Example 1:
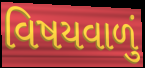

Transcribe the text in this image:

વિષયવાળું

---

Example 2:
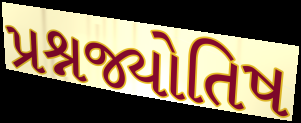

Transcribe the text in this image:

પ્રશ્નજ્યોતિષ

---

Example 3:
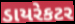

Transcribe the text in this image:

ડાયરેકટર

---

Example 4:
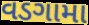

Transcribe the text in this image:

વડગામા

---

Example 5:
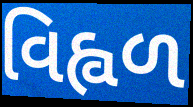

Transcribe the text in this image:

વિહ્વળ